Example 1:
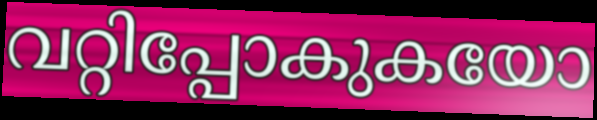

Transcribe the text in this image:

വറ്റിപ്പോകുകയോ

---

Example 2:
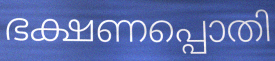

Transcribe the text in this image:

ഭക്ഷണപ്പൊതി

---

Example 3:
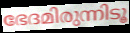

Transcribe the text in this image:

ഭേദമിരുന്നിടൂ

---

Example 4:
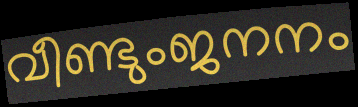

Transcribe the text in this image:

വീണ്ടുംജനനം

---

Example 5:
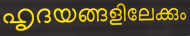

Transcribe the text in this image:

ഹൃദയങ്ങളിലേക്കും